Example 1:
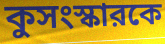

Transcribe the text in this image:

কুসংস্কারকে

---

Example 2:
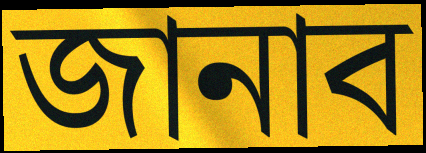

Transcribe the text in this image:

জানাব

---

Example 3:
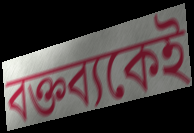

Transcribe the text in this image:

বক্তব্যকেই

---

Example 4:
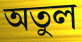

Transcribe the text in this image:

অতুল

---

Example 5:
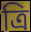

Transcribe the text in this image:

ত্রি